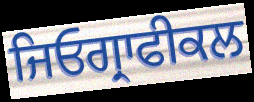
ਜਿਓਗ੍ਰਾਫੀਕਲ